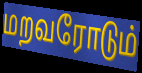
மறவரோடும்